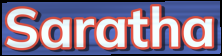
Saratha